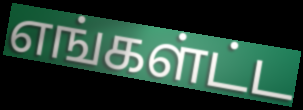
எங்கள்ட்ட